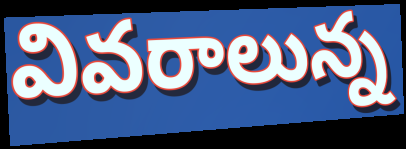
వివరాలున్న